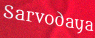
Sarvodaya